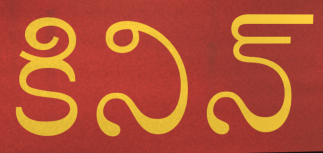
కినిన్